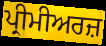
ਪ੍ਰੀਮੀਅਰਜ਼